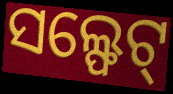
ସଲ୍ଫେଟ୍